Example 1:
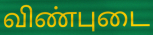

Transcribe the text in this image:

விண்புடை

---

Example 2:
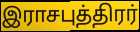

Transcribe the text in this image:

இராசபுத்திரர்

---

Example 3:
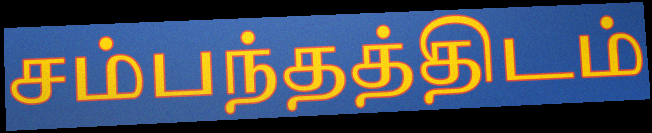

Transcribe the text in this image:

சம்பந்தத்திடம்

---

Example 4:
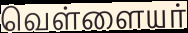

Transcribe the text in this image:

வெள்ளையர்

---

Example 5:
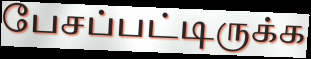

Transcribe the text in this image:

பேசப்பட்டிருக்க